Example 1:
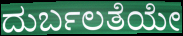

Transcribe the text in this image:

ದುರ್ಬಲತೆಯೇ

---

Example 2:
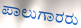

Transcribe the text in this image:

ಪಾಲುಗಾರರು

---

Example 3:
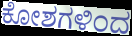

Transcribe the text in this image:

ಕೋಶಗಳಿಂದ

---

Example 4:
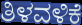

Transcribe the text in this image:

ತಿಳವಳಿಕೆ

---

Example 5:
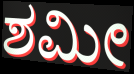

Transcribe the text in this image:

ಶಮೀ